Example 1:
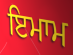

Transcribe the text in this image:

ਇਮਾਮ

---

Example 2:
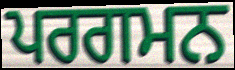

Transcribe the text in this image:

ਪਰਗਮਨ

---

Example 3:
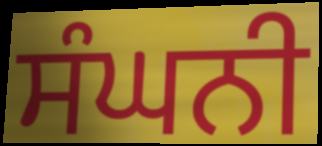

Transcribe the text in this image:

ਸੰਘਨੀ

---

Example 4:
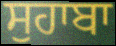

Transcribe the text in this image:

ਸੁਹਾਬਾ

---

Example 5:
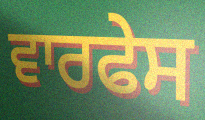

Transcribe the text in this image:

ਵਾਰਫੇਸ